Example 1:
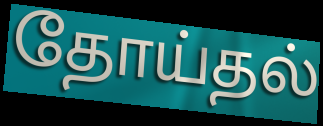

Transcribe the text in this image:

தோய்தல்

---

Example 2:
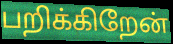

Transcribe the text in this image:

பறிக்கிறேன்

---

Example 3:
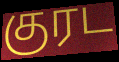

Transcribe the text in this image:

குரட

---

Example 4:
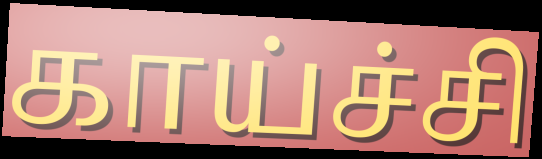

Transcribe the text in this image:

காய்ச்சி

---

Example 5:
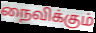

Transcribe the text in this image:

நைவிக்கும்